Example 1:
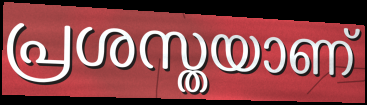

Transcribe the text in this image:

പ്രശസ്തയാണ്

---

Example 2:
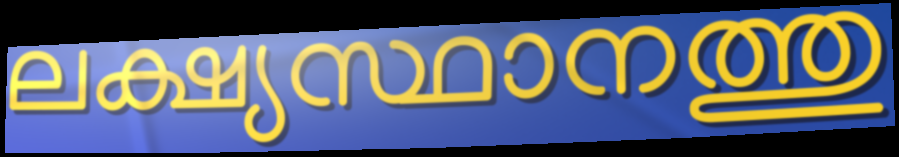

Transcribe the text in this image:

ലക്ഷ്യസ്ഥാനത്തു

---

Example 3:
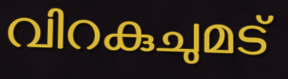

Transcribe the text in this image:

വിറകുചുമട്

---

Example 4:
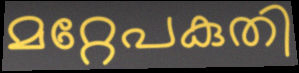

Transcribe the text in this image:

മറ്റേപകുതി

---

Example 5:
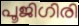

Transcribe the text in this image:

പൂജിഗിരി